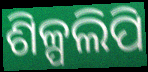
ଶିଳ୍ପଲିପି